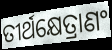
ତୀର୍ଥକ୍ଷେତ୍ରାଣଂ